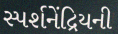
સ્પર્શનેંદ્રિયની